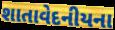
શાતાવેદનીયના